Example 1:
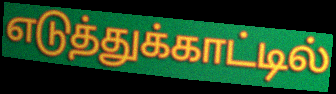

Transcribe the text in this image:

எடுத்துக்காட்டில்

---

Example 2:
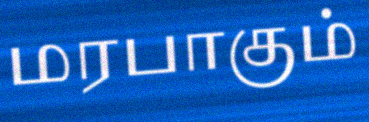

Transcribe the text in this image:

மரபாகும்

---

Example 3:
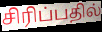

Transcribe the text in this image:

சிரிப்பதில்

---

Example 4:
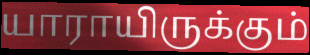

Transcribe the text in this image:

யாராயிருக்கும்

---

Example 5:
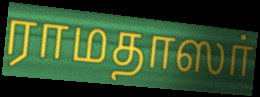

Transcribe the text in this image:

ராமதாஸர்